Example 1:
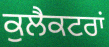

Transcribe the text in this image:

ਕੁਲੈਕਟਰਾਂ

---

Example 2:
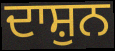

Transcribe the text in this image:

ਦਾਸ਼ੁਨ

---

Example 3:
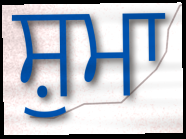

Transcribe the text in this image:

ਸ਼ੁਮਾ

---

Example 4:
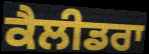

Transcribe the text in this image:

ਕੈਲੀਡਰਾ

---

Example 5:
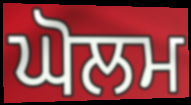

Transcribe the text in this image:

ਘੋਲਮ